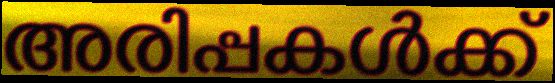
അരിപ്പകൾക്ക്